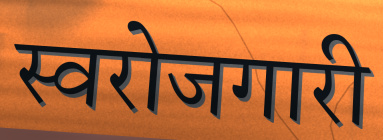
स्वरोजगारी